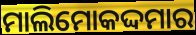
ମାଲିମୋକଦ୍ଦମାର